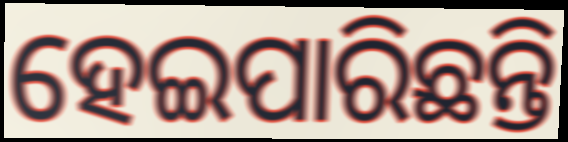
ହେଇପାରିଛନ୍ତି